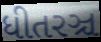
ધીતરઞ્ચ